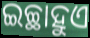
ଇଚ୍ଛାହୁଏ